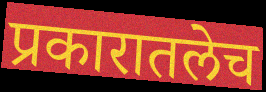
प्रकारातलेच